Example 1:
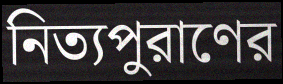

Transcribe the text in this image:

নিত্যপুরাণের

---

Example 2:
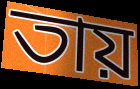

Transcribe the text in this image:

তায়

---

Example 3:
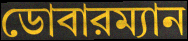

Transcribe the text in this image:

ডোবারম্যান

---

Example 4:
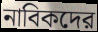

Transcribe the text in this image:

নাবিকদের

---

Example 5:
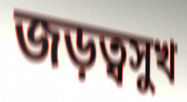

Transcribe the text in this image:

জড়ত্বসুখ